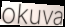
okuva